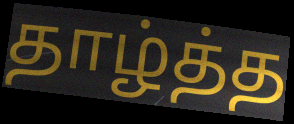
தாழ்த்த